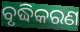
ବୃଦ୍ଧିକରଣ